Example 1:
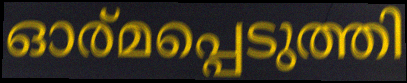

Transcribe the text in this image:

ഓര്മപ്പെടുത്തി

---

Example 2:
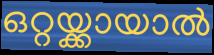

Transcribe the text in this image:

ഒറ്റയ്ക്കായാൽ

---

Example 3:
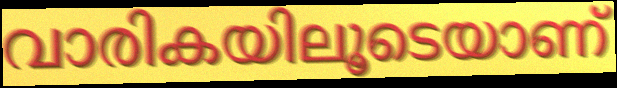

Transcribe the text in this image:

വാരികയിലൂടെയാണ്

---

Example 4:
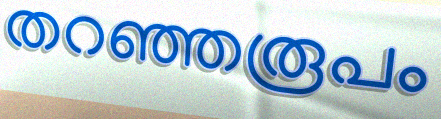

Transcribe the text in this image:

തറഞ്ഞരൂപം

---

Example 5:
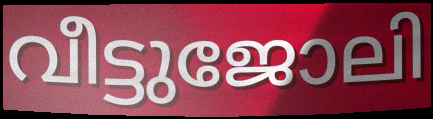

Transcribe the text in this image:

വീട്ടുജോലി